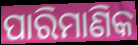
ପାରିମାଣିକ